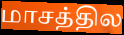
மாசத்தில